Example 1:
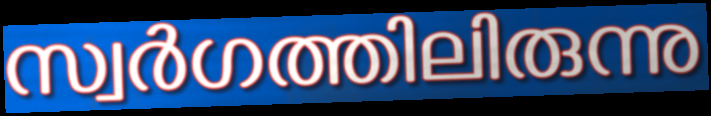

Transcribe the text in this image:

സ്വർഗത്തിലിരുന്നു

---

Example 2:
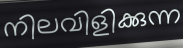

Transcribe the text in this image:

നിലവിളിക്കുന്ന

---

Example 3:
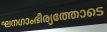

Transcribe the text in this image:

ഘനഗാംഭീര്യത്തോടെ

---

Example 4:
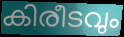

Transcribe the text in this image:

കിരീടവും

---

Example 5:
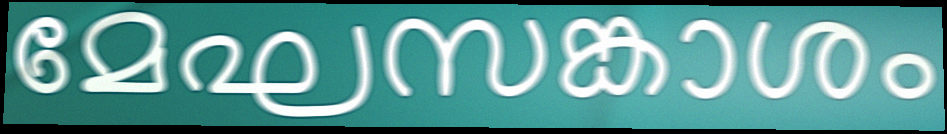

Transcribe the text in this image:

മേഘസങ്കാശം